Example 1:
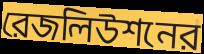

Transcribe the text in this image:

রেজলিউশনের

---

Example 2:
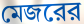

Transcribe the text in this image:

মেজরের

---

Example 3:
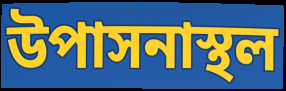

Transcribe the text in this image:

উপাসনাস্থল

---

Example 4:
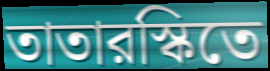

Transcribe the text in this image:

তাতারস্কিতে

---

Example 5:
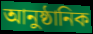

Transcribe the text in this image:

আনুষ্ঠানিক